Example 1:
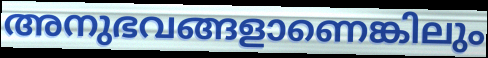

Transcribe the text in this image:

അനുഭവങ്ങളാണെങ്കിലും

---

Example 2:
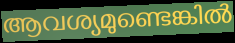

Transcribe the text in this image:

ആവശ്യമുണ്ടെങ്കിൽ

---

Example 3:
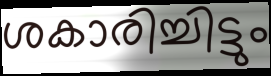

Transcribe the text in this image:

ശകാരിച്ചിട്ടും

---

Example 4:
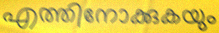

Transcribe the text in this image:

എത്തിനോക്കുകയും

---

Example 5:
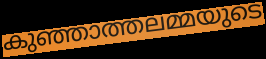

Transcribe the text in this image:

കുഞ്ഞാത്തലമ്മയുടെ